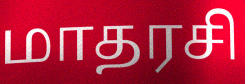
மாதரசி